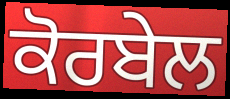
ਕੋਰਬੇਲ